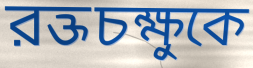
রক্তচক্ষুকে